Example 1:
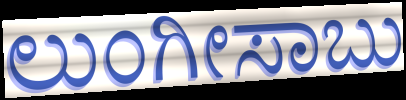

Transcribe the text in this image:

ಲುಂಗೀಸಾಬು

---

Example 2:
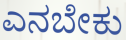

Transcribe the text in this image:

ಎನಬೇಕು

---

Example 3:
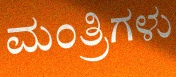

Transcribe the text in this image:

ಮಂತ್ರಿಗಳು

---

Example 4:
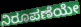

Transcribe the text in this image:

ನಿರೂಪಣೆಯೇ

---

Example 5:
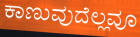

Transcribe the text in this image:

ಕಾಣುವುದೆಲ್ಲವೂ